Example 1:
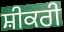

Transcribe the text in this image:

ਸ਼ੀਕਰੀ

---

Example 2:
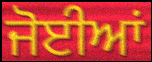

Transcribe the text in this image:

ਜੋਈਆਂ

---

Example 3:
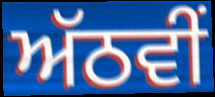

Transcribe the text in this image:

ਅੱਠਵੀਂ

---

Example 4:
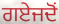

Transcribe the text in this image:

ਗਏਜਦੋਂ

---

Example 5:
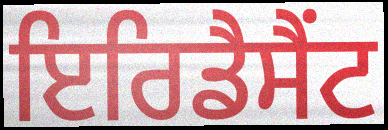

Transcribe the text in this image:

ਇਰਿਡੈਸੈਂਟ